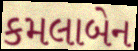
કમલાબેન